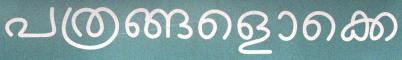
പത്രങ്ങളൊക്കെ